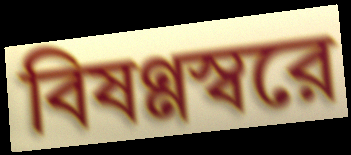
বিষণ্ণস্বরে